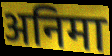
अनिमा